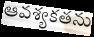
ఆవశ్యకతను